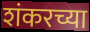
शंकरच्या